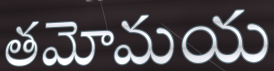
తమోమయ